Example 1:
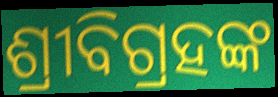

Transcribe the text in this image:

ଶ୍ରୀବିଗ୍ରହଙ୍କ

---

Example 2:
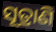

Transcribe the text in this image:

ସୂତ୍ରାଣି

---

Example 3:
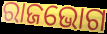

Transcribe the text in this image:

ରାଜଭୋଗ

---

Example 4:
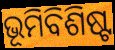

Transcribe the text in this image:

ଭୂମିବିଶିଷ୍ଟ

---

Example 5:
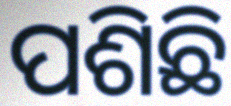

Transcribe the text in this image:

ପଶିଛି